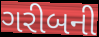
ગરીબની